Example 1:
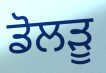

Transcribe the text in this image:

ਡੋਲੜੂ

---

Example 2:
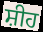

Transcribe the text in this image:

ਸ਼ੀਹ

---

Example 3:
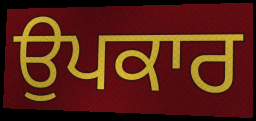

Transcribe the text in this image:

ਉਪਕਾਰ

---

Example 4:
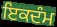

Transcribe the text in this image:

ਇਕਦੰਮ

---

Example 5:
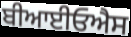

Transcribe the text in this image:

ਬੀਆਈਓਐਸ